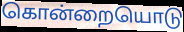
கொன்றையொடு